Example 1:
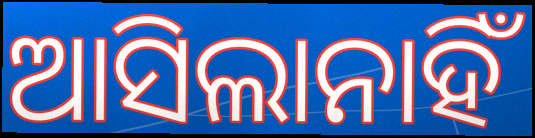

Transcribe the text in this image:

ଆସିଲାନାହିଁ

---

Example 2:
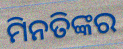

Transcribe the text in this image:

ମିନତିଙ୍କର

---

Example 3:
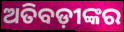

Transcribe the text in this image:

ଅତିବଡ଼ୀଙ୍କର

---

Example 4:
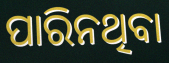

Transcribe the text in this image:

ପାରିନଥିବା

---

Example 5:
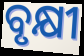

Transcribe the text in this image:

ବୃକ୍ଷୀ